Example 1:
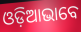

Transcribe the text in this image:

ଓଡ଼ିଆଭାବେ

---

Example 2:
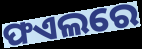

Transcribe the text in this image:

ଫଏଲରେ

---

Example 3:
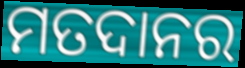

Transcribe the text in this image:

ମତଦାନର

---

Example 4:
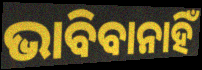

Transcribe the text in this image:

ଭାବିବାନାହିଁ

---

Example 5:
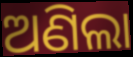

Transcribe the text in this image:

ଅଣିଲା